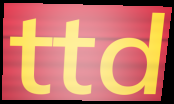
ttd